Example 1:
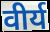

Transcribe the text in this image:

वीर्य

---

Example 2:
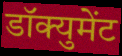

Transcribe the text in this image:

डॉक्युमेंट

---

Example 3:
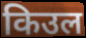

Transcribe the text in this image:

किउल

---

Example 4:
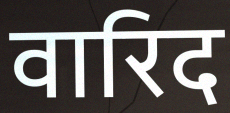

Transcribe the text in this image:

वारिद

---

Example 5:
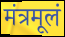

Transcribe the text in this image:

मंत्रमूलं